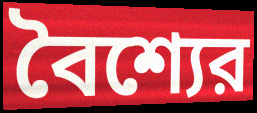
বৈশ্যের